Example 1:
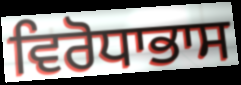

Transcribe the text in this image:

ਵਿਰੋਧਾਭਾਸ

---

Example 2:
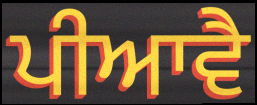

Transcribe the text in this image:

ਪੀਆਵੈ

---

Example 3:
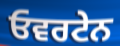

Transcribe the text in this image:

ਓਵਰਟੇਨ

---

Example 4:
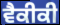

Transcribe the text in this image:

ਵੈਕੀਕੀ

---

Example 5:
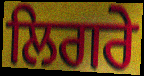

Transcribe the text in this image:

ਲਿਗਰੇ